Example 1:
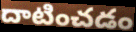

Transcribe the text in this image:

దాటించడం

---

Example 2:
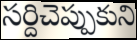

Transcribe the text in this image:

సర్దిచెప్పుకుని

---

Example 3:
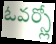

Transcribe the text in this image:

ఓవర్స్లో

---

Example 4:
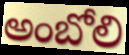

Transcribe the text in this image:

అంబోలి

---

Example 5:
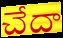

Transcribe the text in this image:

చేదా